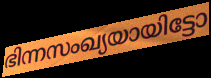
ഭിന്നസംഖ്യയായിട്ടോ